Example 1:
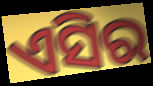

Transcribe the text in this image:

ଏସିର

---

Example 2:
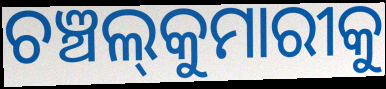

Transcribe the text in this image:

ଚଞ୍ଚଲ୍‍କୁମାରୀକୁ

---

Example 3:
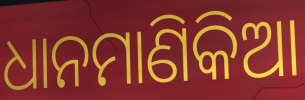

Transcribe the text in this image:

ଧାନମାଣିକିଆ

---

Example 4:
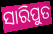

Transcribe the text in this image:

ସାରିପୁତ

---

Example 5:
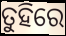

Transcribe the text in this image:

ତୁହିରେ